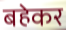
बहेकर